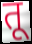
तू